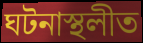
ঘটনাস্থলীত